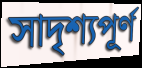
সাদৃশ্যপূর্ণ